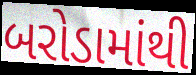
બરોડામાંથી